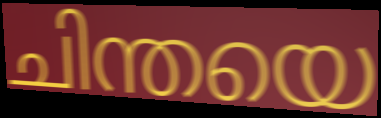
ചിന്തയെ